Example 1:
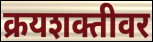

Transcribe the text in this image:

क्रयशक्तीवर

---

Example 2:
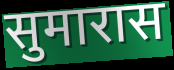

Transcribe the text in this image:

सुमारास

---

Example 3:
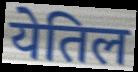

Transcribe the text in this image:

येतिल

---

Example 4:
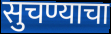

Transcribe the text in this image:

सुचण्याचा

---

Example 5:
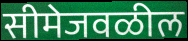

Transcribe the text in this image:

सीमेजवळील